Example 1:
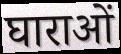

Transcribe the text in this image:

घाराओं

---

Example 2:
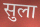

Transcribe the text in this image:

सुला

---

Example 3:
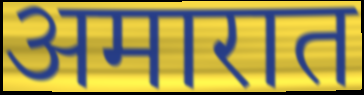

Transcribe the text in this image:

अमारात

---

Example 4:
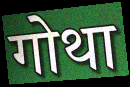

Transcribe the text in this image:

गोथा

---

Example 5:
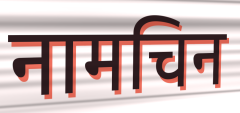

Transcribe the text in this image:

नामचिन